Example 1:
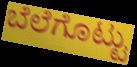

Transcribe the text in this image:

ಬೆಲೆಗೊಟ್ಟು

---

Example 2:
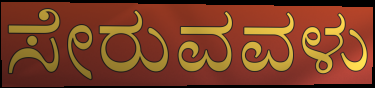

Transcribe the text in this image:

ಸೇರುವವಳು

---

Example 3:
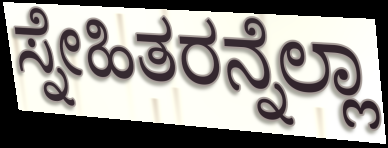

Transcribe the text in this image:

ಸ್ನೇಹಿತರನ್ನೆಲ್ಲಾ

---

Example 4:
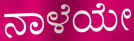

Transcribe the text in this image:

ನಾಳೆಯೇ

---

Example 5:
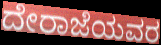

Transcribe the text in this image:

ದೇರಾಜೆಯವರ